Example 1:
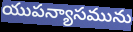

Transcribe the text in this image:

యుపన్యాసమును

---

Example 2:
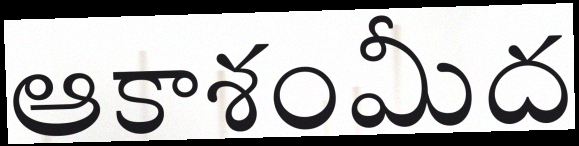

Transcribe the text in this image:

ఆకాశంమీద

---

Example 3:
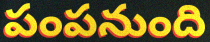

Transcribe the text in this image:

పంపనుంది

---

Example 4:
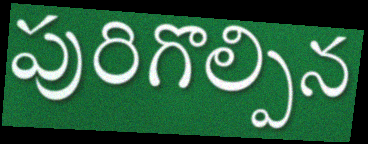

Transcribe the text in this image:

పురిగొల్పిన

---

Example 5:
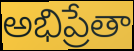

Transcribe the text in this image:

అభిప్రేతా